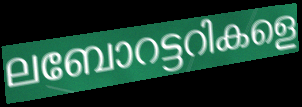
ലബോറട്ടറികളെ